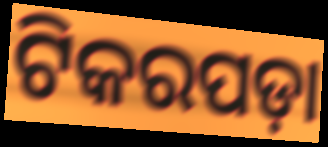
ଟିକରପଡ଼ା